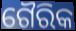
ଗୈରିକ